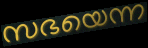
സഭയെന്ന